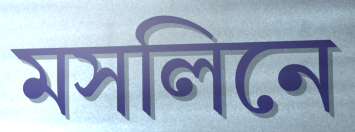
মসলিনে